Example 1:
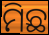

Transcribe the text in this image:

ମିଛ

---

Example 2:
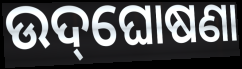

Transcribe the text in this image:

ଉଦ୍‌ଘୋଷଣା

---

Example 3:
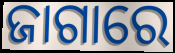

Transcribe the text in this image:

ଜାଗାରେ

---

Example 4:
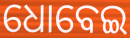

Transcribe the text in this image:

ଧୋବେଇ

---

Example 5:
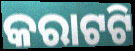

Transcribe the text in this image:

କରାଟଟି